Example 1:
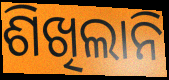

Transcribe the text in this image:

ଶିଖିଲାନି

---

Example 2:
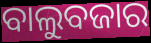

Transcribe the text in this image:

ବାଲୁବଜାର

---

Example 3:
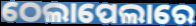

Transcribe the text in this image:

ଠେଲାପେଲାରେ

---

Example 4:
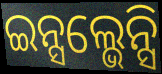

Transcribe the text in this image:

ଇନ୍ସଲ୍ଭେନ୍ସି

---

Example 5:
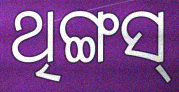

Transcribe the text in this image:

ଥିଙ୍ଗସ୍